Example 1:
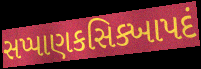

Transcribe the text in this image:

સપ્પાણકસિક્ખાપદં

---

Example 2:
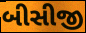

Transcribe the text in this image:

બીસીજી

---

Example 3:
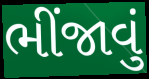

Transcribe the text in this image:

ભીંજાવું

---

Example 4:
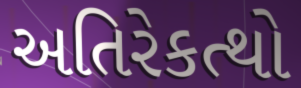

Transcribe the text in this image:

અતિરેકત્થો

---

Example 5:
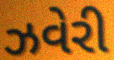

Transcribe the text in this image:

ઝવેરી